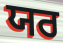
ਯਰ